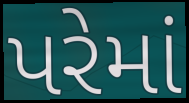
પરેમાં